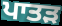
ਪਾਤੜ